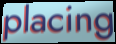
placing